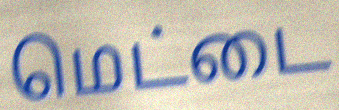
மெட்டை